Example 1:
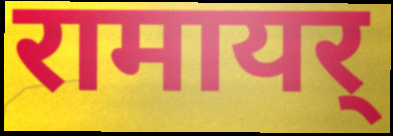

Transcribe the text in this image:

रामायर्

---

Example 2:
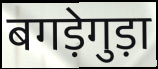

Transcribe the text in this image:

बगड़ेगुड़ा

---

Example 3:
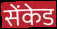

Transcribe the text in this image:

सेंकेड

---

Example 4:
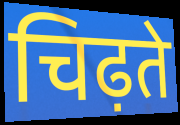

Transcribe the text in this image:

चिढ़ते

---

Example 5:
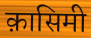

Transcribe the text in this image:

क़ासिमी